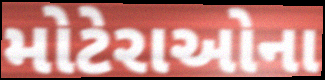
મોટેરાઓના